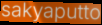
sakyaputto